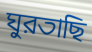
ঘুরতাছি